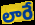
లారే